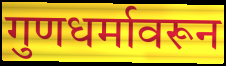
गुणधर्मावरून